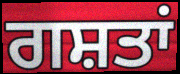
ਗਸ਼ਤਾਂ